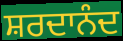
ਸ਼ਰਦਾਨੰਦ